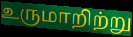
உருமாறிற்று